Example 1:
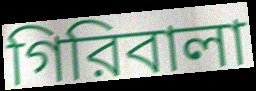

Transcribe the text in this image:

গিরিবালা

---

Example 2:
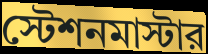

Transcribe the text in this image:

স্টেশনমাস্টার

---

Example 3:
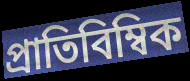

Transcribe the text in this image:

প্রাতিবিম্বিক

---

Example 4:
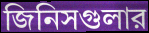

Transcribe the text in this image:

জিনিসগুলার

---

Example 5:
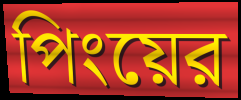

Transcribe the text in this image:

পিংয়ের